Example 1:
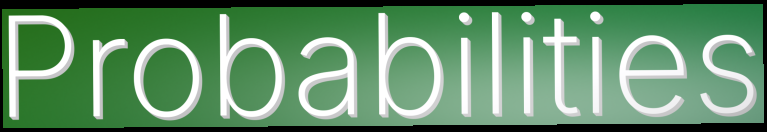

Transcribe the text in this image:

Probabilities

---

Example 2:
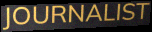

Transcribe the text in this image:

JOURNALIST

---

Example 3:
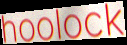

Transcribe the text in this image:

hoolock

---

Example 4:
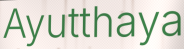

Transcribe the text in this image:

Ayutthaya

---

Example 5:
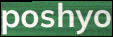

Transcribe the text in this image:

poshyo